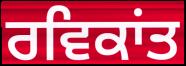
ਰਵਿਕਾਂਤ